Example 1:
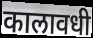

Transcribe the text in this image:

कालावधी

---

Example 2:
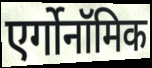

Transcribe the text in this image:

एर्गोनॉमिक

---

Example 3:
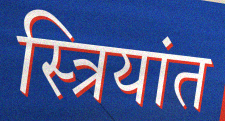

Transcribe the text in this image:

स्त्रियांत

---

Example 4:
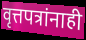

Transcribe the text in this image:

वृत्तपत्रांनाही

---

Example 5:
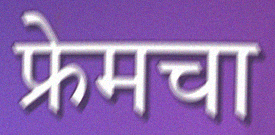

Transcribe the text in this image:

फ्रेमचा